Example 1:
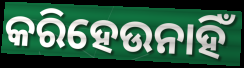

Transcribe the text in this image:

କରିହେଉନାହିଁ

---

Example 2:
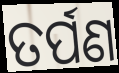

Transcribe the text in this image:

ତର୍ପଣ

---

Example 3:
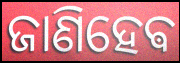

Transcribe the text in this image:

ଜାଣିହେଵ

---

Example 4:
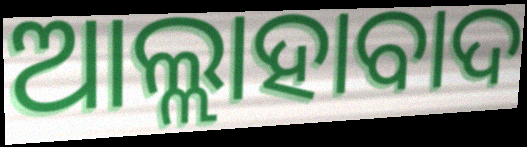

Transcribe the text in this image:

ଆଲ୍ଲାହାବାଦ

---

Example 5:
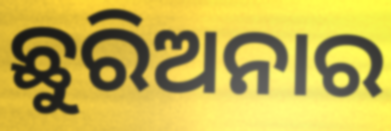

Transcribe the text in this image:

ଛୁରିଅନାର